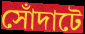
সোঁদাটে